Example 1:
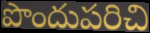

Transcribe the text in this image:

పొందుపరిచి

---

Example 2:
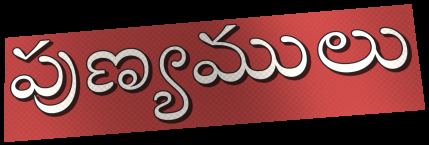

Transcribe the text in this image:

పుణ్యములు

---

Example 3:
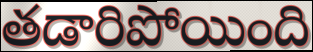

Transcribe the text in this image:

తడారిపోయింది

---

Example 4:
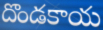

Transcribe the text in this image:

దొండకాయ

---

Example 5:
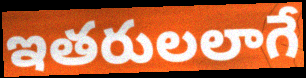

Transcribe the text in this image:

ఇతరులలాగే